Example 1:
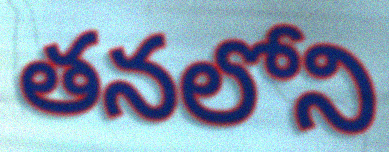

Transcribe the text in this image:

తనలోని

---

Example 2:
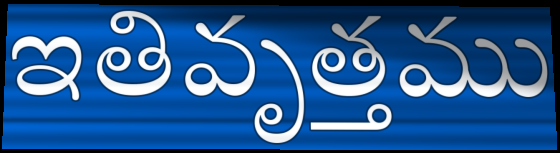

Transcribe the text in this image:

ఇతివృత్తము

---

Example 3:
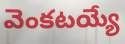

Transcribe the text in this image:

వెంకటయ్యే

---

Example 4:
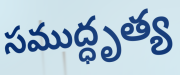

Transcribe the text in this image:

సముద్ధృత్య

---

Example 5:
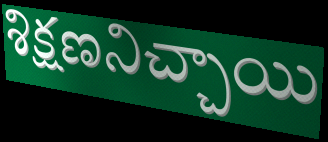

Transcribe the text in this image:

శిక్షణనిచ్చాయి